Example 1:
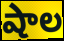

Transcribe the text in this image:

షాల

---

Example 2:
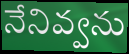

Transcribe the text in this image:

నేనివ్వను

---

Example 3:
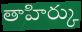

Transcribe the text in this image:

తాహిర్కు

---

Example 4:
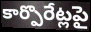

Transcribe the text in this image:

కార్పొరేట్లపై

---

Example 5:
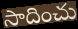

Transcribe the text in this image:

సాదించు